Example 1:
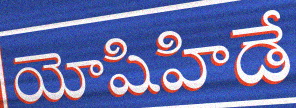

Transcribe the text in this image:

యోషిహిడే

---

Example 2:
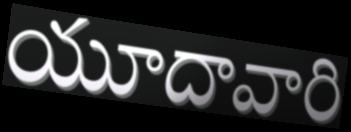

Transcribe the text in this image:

యూదావారి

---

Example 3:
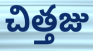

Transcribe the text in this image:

చిత్తజు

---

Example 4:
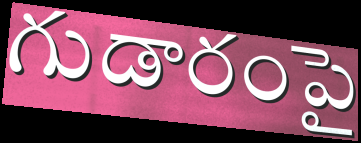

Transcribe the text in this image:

గుడారంపై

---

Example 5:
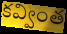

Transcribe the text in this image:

కవ్వింత